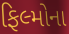
ફિલ્મોના